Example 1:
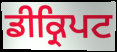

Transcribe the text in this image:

ਡੀਕ੍ਰਿਪਟ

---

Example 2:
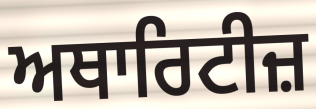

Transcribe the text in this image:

ਅਥਾਰਿਟੀਜ਼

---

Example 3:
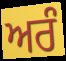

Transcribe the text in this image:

ਅਰੰ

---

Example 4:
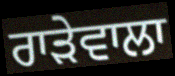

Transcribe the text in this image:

ਰਾੜੇਵਾਲਾ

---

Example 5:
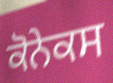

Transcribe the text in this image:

ਕੋਨੇਕਸ